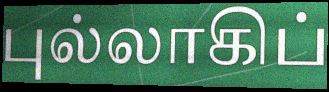
புல்லாகிப்